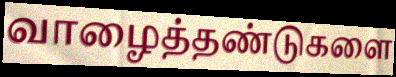
வாழைத்தண்டுகளை